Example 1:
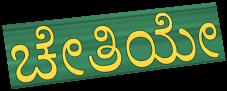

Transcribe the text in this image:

ಚೇತಿಯೇ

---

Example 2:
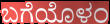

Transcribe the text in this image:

ಬಗೆಯೊಳಂ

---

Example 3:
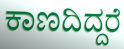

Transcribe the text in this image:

ಕಾಣದಿದ್ದರೆ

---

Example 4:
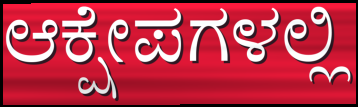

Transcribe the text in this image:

ಆಕ್ಷೇಪಗಳಲ್ಲಿ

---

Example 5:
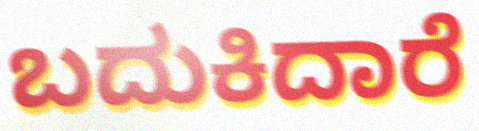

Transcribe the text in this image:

ಬದುಕಿದಾರೆ